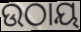
ଉଠାୟ